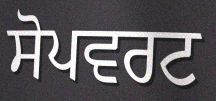
ਸੋਪਵਰਟ